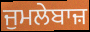
ਜੁਮਲੇਬਾਜ਼